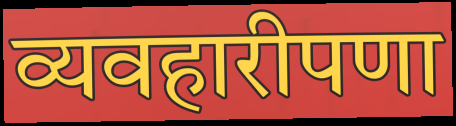
व्यवहारीपणा